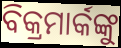
ବିକ୍ରମାର୍କଙ୍କୁ